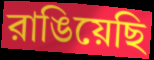
রাঙিয়েছি